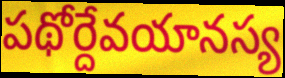
పథోర్దేవయానస్య